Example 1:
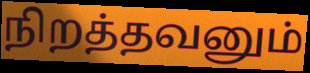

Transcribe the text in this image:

நிறத்தவனும்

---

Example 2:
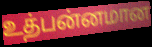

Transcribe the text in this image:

உத்பன்னமான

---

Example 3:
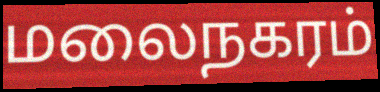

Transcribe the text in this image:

மலைநகரம்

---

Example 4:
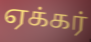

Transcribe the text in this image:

ஏக்கர்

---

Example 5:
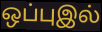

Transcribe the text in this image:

ஒப்புஇல்